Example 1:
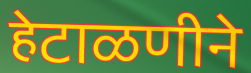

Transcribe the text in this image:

हेटाळणीने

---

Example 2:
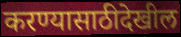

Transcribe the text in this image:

करण्यासाठीदेखील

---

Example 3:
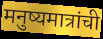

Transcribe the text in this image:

मनुष्यमात्रांची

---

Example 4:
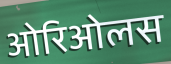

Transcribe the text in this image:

ओरिओलस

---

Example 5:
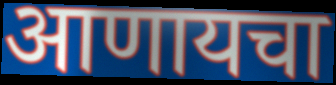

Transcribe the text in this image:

आणायचा